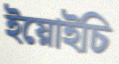
ইয়োইচি